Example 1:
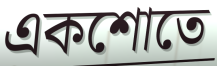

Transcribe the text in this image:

একশোতে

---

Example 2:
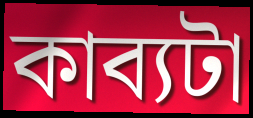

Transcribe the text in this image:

কাব্যটা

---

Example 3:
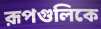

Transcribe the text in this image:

রূপগুলিকে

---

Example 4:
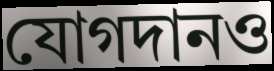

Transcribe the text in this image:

যোগদানও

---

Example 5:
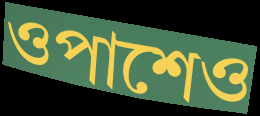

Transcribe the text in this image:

ওপাশেও